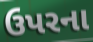
ઉપરના